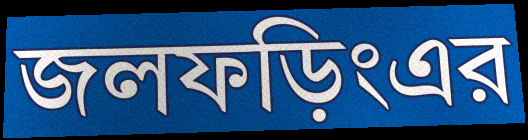
জলফড়িংএর